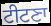
ਟੀਟਣਾ